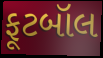
ફૂટબૉલ